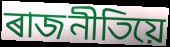
ৰাজনীতিয়ে